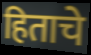
हिताचे